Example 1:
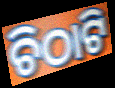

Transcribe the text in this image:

ଚିଠାଟି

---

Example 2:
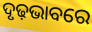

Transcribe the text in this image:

ଦୃଢ଼ଭାବରେ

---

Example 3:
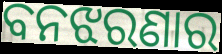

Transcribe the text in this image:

ବନଝରଣାର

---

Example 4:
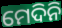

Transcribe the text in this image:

ମେଦିନି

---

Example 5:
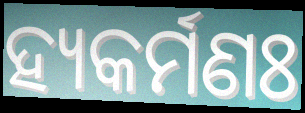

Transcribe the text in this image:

ହ୍ୟକର୍ମଣଃ